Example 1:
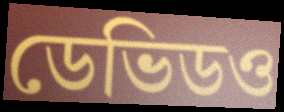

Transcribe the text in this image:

ডেভিডও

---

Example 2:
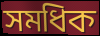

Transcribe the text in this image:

সমধিক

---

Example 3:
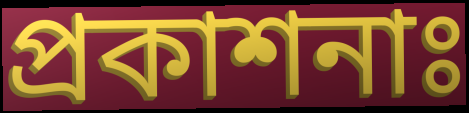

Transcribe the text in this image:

প্রকাশনাঃ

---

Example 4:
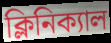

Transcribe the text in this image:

ক্লিনিক্যাল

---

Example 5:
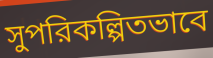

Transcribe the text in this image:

সুপরিকল্পিতভাবে